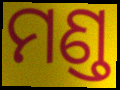
ମଣ୍ଡ